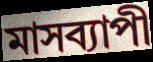
মাসব্যাপী